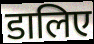
डालिए